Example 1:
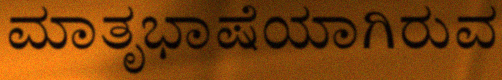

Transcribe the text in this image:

ಮಾತೃಭಾಷೆಯಾಗಿರುವ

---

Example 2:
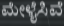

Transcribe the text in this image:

ಮೇಳೈಸಿವೆ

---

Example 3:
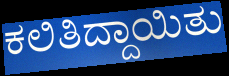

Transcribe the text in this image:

ಕಲಿತಿದ್ದಾಯಿತು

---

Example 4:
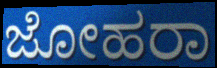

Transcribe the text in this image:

ಜೋಹರಾ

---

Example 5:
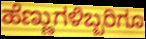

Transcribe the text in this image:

ಹೆಣ್ಣುಗಳಿಬ್ಬರಿಗೂ